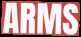
ARMS